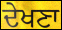
ਦੇਖਣਾ